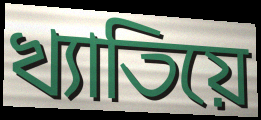
খ্যাতিয়ে